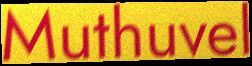
Muthuvel